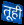
तूही